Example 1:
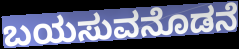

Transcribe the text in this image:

ಬಯಸುವನೊಡನೆ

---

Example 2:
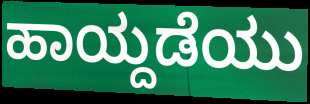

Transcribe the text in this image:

ಹಾಯ್ದಡೆಯು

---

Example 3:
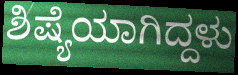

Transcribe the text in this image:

ಶಿಷ್ಯೆಯಾಗಿದ್ದಳು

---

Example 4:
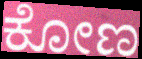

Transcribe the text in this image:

ಕೋಣ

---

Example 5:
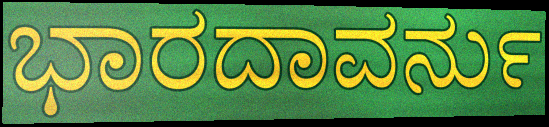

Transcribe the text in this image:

ಭಾರದಾವರ್ನು